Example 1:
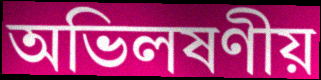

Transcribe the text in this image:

অভিলষণীয়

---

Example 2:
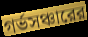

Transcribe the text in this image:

গর্ভসঞ্চারের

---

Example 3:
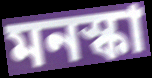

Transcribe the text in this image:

মনস্কা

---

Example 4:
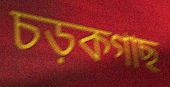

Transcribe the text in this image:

চড়কগাছ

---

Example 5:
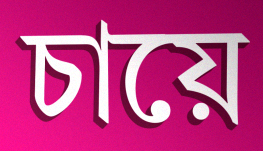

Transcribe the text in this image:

চায়ে